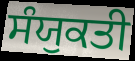
ਸੰਯੁਕਤੀ